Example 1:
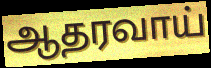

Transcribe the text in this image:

ஆதரவாய்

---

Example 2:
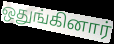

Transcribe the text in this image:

ஒதுங்கினார்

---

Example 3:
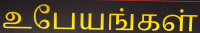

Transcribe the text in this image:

உபேயங்கள்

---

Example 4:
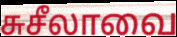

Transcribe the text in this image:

சுசீலாவை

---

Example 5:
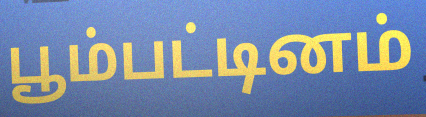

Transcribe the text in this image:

பூம்பட்டினம்